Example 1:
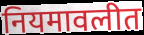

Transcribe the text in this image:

नियमावलीत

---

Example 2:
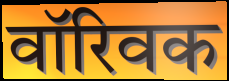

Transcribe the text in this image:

वॉरिवक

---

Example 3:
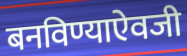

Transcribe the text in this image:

बनविण्याऐवजी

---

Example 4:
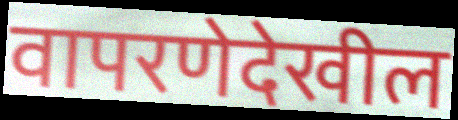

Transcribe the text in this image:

वापरणेदेखील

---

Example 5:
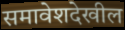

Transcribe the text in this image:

समावेशदेखील